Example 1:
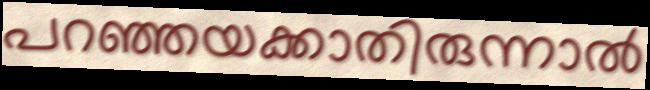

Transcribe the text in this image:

പറഞ്ഞയക്കാതിരുന്നാൽ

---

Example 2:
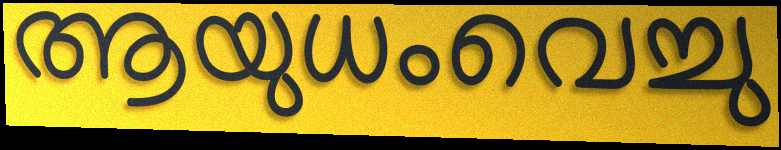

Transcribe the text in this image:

ആയുധംവെച്ചു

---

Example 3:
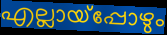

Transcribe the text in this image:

എല്ലായ്പ്പോഴും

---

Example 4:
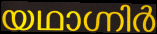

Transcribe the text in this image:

യഥാഗ്നിർ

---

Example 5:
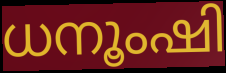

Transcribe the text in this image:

ധനൂംഷി